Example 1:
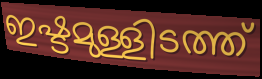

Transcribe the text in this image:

ഇഷ്ടമുള്ളിടത്ത്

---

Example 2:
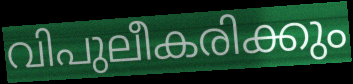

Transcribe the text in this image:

വിപുലീകരിക്കും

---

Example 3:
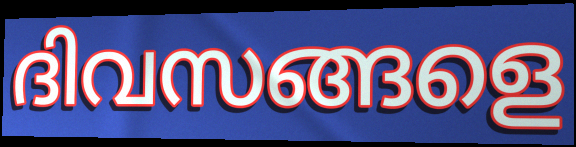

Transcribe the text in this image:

ദിവസങ്ങളെ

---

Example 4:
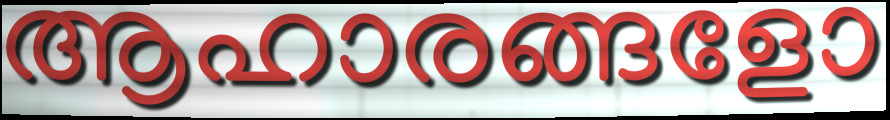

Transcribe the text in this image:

ആഹാരങ്ങളോ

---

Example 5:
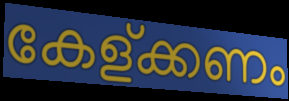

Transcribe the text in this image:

കേള്ക്കണം